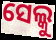
ସେଲ୍କୁ